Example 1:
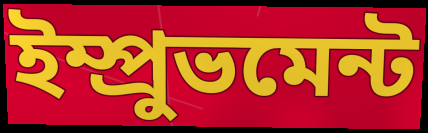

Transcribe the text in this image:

ইম্প্রুভমেন্ট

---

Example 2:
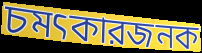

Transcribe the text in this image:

চমৎকারজনক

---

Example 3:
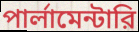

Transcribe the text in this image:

পার্লামেন্টারি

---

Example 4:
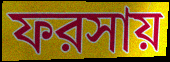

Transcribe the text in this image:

ফরসায়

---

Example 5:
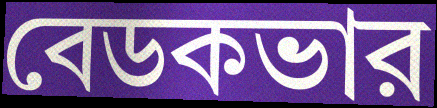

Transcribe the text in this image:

বেডকভার